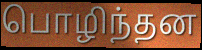
பொழிந்தன